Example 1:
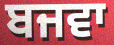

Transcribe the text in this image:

ਬਜਵਾ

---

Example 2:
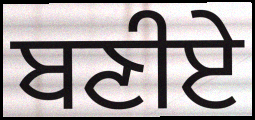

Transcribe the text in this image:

ਬਣੀਏ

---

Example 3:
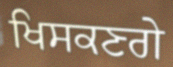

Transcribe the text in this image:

ਖਿਸਕਣਗੇ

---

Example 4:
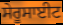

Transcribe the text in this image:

ਸੇਰੂਸਾਈਟ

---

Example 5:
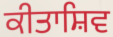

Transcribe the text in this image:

ਕੀਤਾਸ਼ਿਵ